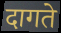
दागते